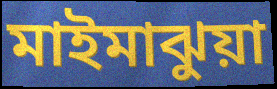
মাইমাঝুয়া